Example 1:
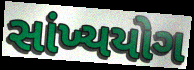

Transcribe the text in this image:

સાંખ્યયોગ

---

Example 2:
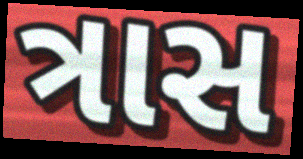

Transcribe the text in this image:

ત્રાસ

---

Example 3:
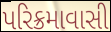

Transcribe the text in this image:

પરિક્રમાવાસી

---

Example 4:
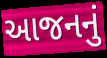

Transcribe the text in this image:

આજનનું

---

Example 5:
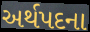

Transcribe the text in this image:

અર્થપદના